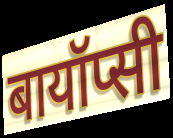
बायॉप्सी